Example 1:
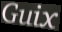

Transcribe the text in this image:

Guix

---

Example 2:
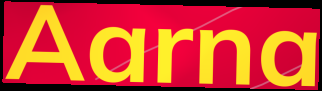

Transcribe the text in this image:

Aarna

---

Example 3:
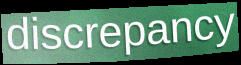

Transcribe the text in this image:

discrepancy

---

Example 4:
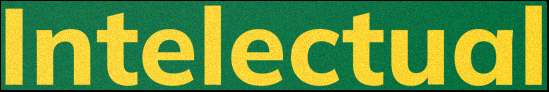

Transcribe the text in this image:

Intelectual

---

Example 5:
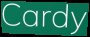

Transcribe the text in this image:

Cardy